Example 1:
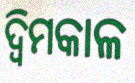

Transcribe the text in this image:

ଦ୍ବିମକାଳ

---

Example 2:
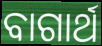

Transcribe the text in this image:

ବାଗାର୍ଥ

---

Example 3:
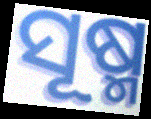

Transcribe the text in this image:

ସୂଷ୍ମ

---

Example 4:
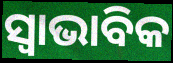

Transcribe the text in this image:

ସ୍ୱାଭାବିକ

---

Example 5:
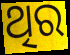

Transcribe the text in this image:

ଥିର